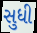
સુધી